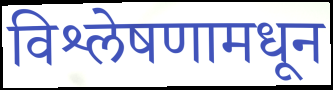
विश्लेषणामधून